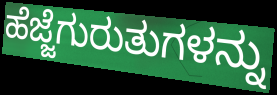
ಹೆಜ್ಜೆಗುರುತುಗಳನ್ನು